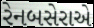
રેનબસેરાએ